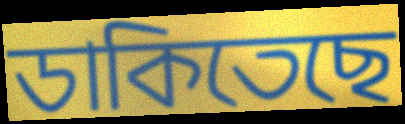
ডাকিতেছে